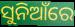
ସୁନିଆଁରେ